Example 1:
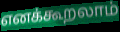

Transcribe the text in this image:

எனக்கூறலாம்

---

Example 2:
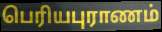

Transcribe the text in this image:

பெரியபுராணம்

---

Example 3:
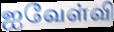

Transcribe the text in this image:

ஐவேள்வி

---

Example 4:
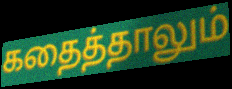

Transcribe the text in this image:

கதைத்தாலும்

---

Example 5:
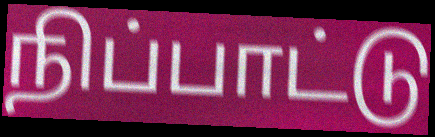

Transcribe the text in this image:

நிப்பாட்டு